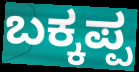
ಬಕ್ಕಪ್ಪ